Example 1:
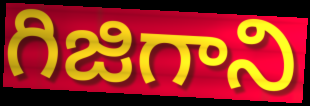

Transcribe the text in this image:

గిజిగాని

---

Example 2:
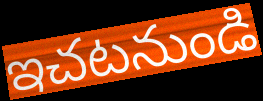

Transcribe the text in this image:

ఇచటనుండి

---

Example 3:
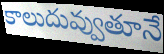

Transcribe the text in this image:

కాలుదువ్వుతూనే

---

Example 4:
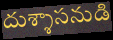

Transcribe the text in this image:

దుశ్శాసనుడి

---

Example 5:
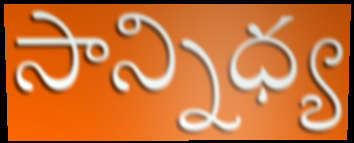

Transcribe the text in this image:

సాన్నిధ్య